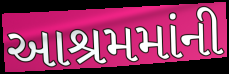
આશ્રમમાંની